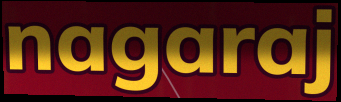
nagaraj